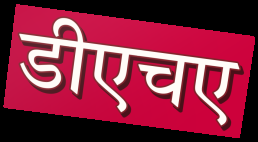
डीएचए